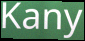
Kany